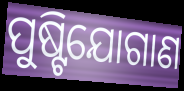
ପୁଷ୍ଟିଯୋଗାଣ